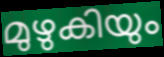
മുഴുകിയും